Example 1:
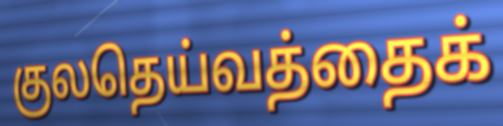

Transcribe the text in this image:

குலதெய்வத்தைக்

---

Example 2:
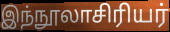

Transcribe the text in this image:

இந்நூலாசிரியர்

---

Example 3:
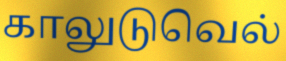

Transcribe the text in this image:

காலுடுவெல்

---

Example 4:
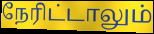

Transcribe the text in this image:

நேரிட்டாலும்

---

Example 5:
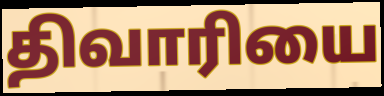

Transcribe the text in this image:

திவாரியை